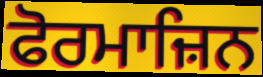
ਫੋਰਮਾਜ਼ਿਨ